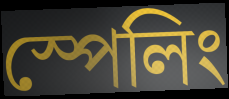
স্পেলিং